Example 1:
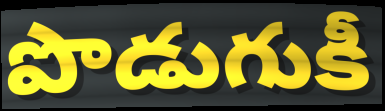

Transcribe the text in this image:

పొడుగుకీ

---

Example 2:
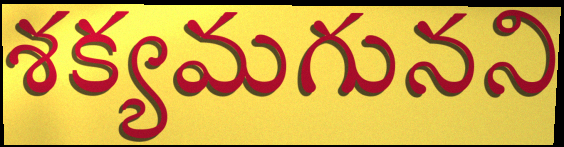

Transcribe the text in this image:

శక్యమగునని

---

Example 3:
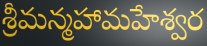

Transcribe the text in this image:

శ్రీమన్మహామహేశ్వర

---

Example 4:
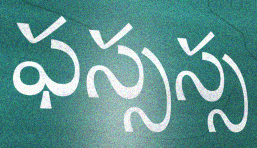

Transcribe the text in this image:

ఫస్సస్స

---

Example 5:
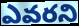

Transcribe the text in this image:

ఎవరని